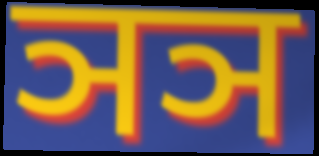
ञञ